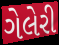
ગેલેરી